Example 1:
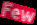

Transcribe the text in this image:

Few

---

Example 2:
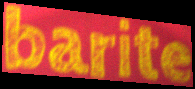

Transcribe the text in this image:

barite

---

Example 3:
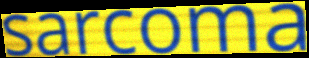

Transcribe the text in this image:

sarcoma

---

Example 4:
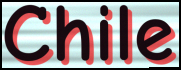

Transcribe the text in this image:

Chile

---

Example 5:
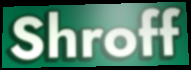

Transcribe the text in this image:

Shroff